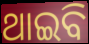
ଥାଇବି